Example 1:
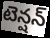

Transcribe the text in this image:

టెన్షన్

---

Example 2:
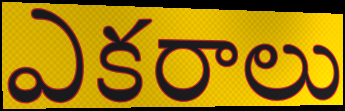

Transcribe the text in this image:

ఎకరాలు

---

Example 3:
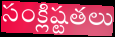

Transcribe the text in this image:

సంక్లిష్టతలు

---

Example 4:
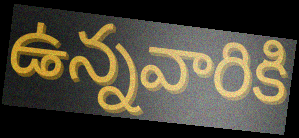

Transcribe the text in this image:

ఉన్నవారికి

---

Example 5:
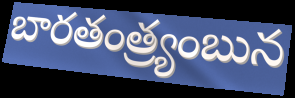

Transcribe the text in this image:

బారతంత్ర్యంబున